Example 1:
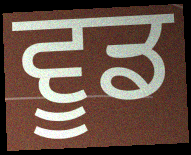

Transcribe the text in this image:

ਵੂਡ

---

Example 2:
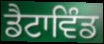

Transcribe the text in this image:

ਡੈਟਾਵਿੰਡ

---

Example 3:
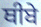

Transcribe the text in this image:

ਥੀਬੇ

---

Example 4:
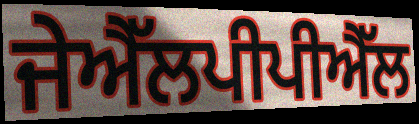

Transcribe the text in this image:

ਜੇਐੱਲਪੀਪੀਐੱਲ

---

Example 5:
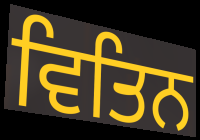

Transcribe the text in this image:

ਵਿਤਿਨ